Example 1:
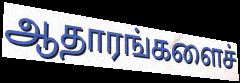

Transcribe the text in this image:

ஆதாரங்களைச்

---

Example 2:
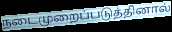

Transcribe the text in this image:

நடைமுறைப்படுத்தினால்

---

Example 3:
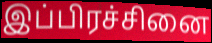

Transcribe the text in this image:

இப்பிரச்சினை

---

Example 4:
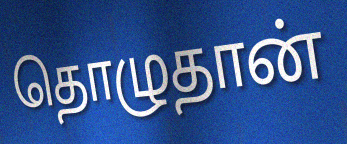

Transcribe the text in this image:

தொழுதான்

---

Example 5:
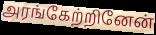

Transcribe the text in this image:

அரங்கேற்றினேன்